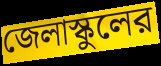
জেলাস্কুলের